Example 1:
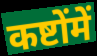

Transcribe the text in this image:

कष्टोंमें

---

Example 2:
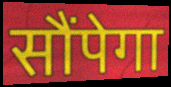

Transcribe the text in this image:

सौंपेगा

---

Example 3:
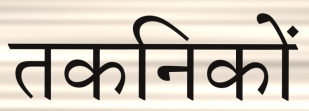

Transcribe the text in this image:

तकनिकों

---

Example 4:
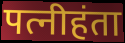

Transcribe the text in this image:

पत्नीहंता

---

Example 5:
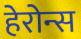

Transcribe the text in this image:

हेरोन्स